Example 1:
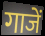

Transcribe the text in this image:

गाजें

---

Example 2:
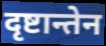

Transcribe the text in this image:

दृष्टान्तेन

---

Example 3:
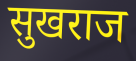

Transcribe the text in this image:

सुखराज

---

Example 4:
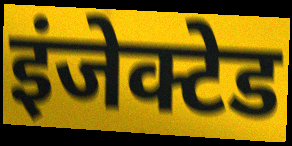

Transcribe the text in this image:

इंजेक्टेड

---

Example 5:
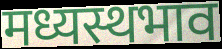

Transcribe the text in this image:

मध्यस्थभाव